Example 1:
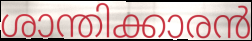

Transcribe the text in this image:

ശാന്തിക്കാരൻ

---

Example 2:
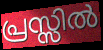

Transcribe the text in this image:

പ്രസ്സിൽ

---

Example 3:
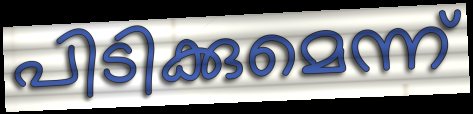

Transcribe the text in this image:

പിടിക്കുമെന്ന്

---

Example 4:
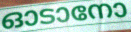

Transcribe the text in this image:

ഓടാനോ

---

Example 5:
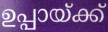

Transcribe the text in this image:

ഉപ്പായ്ക്ക്